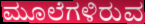
ಮೂಲೆಗಳಿರುವ